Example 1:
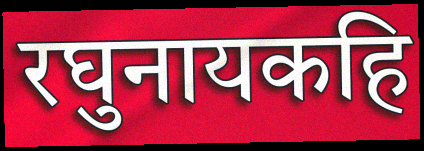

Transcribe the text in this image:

रघुनायकहि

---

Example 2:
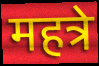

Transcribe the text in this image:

महत्रे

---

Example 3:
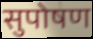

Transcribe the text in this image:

सुपोषण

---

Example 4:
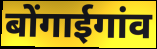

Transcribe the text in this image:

बोंगाईगांव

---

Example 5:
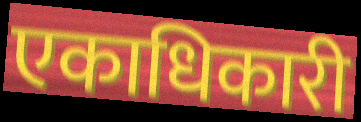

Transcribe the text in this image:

एकाधिकारी